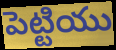
పెట్టియు